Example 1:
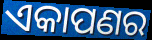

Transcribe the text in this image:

ଏକାପଣର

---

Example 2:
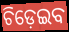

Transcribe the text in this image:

ଚିଡ଼େଇବ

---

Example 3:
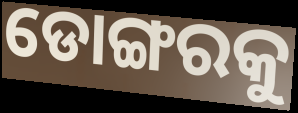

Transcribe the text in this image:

ଡୋଙ୍ଗରକୁ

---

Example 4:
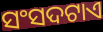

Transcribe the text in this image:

ସଂସଦଟାଏ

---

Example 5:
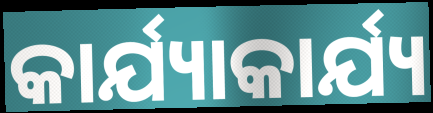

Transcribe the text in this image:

କାର୍ଯ୍ୟାକାର୍ଯ୍ୟ